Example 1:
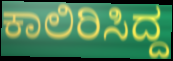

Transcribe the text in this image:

ಕಾಲಿರಿಸಿದ್ದ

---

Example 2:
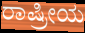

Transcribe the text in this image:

ರಾಷ್ರೀಯ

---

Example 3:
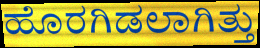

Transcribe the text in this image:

ಹೊರಗಿಡಲಾಗಿತ್ತು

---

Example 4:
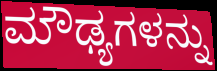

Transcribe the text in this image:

ಮೌಢ್ಯಗಳನ್ನು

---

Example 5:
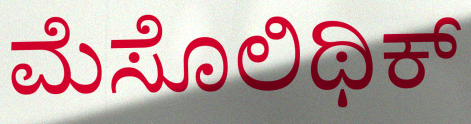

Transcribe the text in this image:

ಮೆಸೊಲಿಥಿಕ್